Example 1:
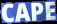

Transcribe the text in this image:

CAPE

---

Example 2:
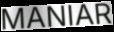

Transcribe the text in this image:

MANIAR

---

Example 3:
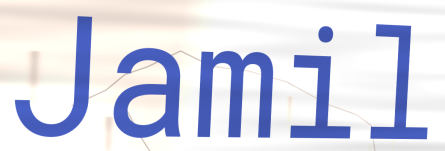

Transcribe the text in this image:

Jamil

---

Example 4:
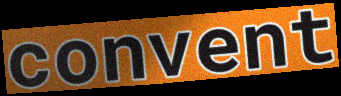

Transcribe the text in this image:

convent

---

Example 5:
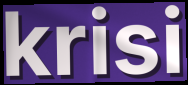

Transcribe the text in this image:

krisi